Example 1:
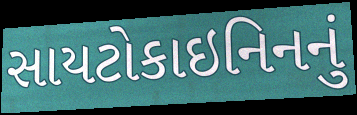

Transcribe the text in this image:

સાયટોકાઇનિનનું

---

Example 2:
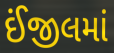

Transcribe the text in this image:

ઈંજીલમાં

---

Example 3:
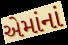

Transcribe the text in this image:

એમાંનાં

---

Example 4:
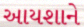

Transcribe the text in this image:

આયશાને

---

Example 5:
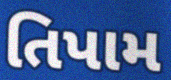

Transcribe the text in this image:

તિપામ